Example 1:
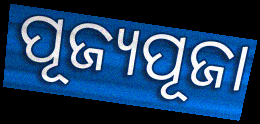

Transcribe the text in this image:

ପୂଜ୍ୟପୂଜା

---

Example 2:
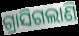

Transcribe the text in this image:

ଗ୍ରାସିଗଲାଣି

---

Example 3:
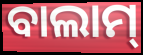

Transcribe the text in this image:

ବାଲାମ୍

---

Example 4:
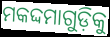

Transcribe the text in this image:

ମକଦ୍ଦମାଗୁଡ଼ିକୁ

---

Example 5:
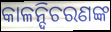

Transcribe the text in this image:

କାଳନ୍ଦିଚରଣଙ୍କ